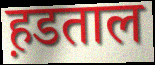
ह़डताल